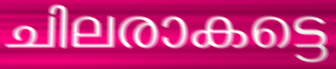
ചിലരാകട്ടെ